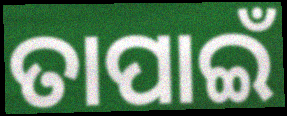
ତାପାଇଁ